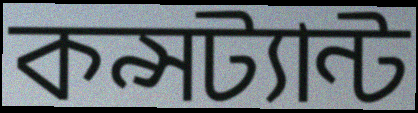
কন্সট্যান্ট